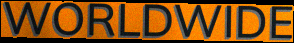
WORLDWIDE